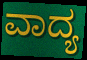
ವಾದ್ಯ